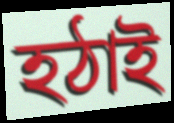
হঠাই